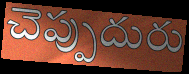
చెప్పుదురు